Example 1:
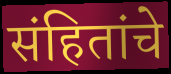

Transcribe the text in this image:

संहितांचे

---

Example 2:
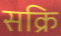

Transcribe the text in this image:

सक्रि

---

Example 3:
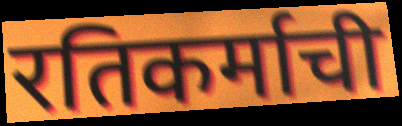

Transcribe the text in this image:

रतिकर्माची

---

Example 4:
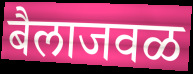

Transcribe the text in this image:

बैलाजवळ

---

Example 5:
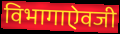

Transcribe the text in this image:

विभागाऐवजी